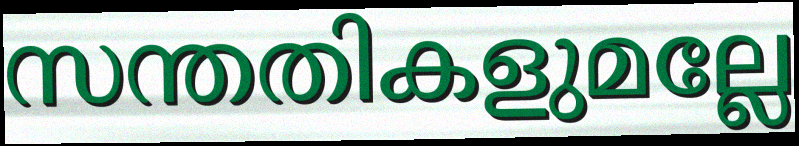
സന്തതികളുമല്ലേ